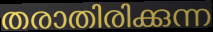
തരാതിരിക്കുന്ന